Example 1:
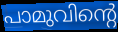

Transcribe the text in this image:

പാമുവിന്റെ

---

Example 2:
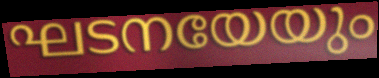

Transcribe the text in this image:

ഘടനയേയും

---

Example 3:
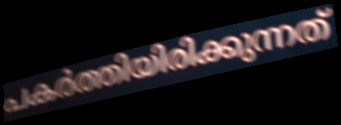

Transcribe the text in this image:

പകർത്തിയിരിക്കുന്നത്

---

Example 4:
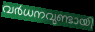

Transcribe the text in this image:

വർധനവുണ്ടായി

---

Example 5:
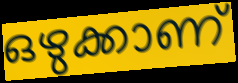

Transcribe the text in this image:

ഒഴുക്കാണ്